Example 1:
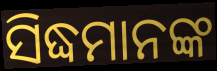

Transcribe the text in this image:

ସିଦ୍ଧମାନଙ୍କ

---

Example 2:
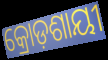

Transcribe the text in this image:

କ୍ରୋଡ଼ଶାୟୀ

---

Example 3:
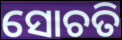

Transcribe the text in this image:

ସୋଚତି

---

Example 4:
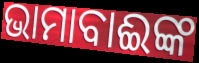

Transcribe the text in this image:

ଭାମାବାଈଙ୍କ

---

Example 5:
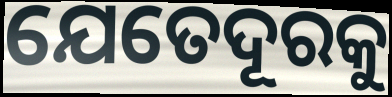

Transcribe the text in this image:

ଯେତେଦୂରକୁ